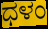
ಧಳಂ